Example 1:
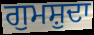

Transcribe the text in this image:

ਗੁਮਸ਼ੁਦਾ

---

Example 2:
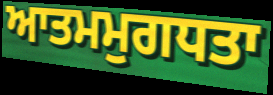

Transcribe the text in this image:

ਆਤਮਮੁਗਧਤਾ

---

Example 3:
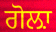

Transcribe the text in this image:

ਗੋਲ਼ਾ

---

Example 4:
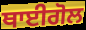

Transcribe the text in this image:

ਥਾਈਗੋਲ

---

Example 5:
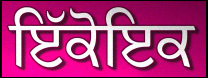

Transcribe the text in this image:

ਇੱਕੋਇਕ